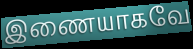
இணையாகவே